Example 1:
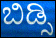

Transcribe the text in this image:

ಬಿಡ್ಸಿ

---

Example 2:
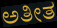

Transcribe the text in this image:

ಅತೀತ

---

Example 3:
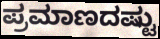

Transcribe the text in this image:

ಪ್ರಮಾಣದಷ್ಟು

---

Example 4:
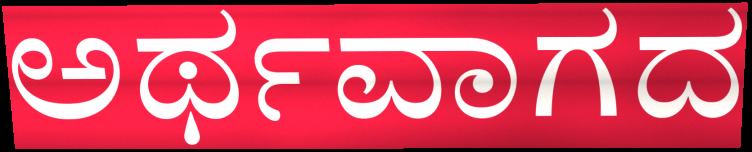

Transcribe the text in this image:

ಅರ್ಥವಾಗದ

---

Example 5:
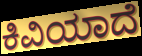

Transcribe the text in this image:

ಕಿವಿಯಾದೆ